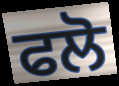
ਫਲੋ